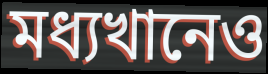
মধ্যখানেও